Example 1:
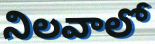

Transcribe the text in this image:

నిలవాలో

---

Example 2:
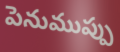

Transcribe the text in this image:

పెనుముప్పు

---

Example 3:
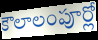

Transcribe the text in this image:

కౌలాలంపూర్లో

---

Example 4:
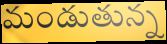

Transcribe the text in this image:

మండుతున్న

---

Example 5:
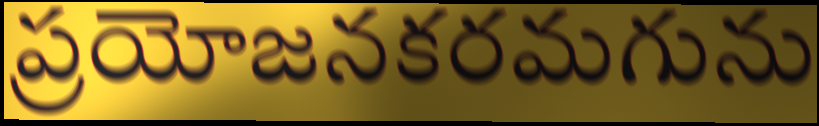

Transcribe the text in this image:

ప్రయోజనకరమగును